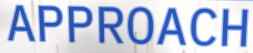
APPROACH